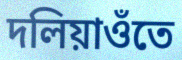
দলিয়াওঁতে